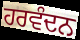
ਹਰਵੰਦਨ